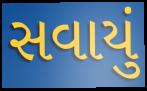
સવાયું